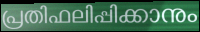
പ്രതിഫലിപ്പിക്കാനും